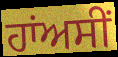
ਹਾਂਅਸੀਂ